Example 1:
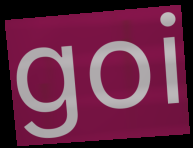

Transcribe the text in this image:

goi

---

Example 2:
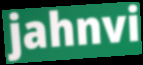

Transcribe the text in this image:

jahnvi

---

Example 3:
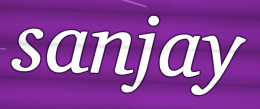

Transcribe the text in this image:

sanjay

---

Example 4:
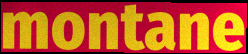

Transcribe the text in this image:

montane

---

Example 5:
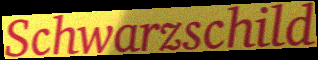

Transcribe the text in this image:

Schwarzschild